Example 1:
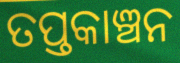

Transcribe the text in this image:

ତପ୍ତକାଞ୍ଚନ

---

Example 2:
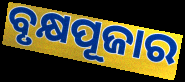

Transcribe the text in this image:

ବୃକ୍ଷପୂଜାର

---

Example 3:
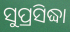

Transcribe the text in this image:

ସୁପ୍ରସିଦ୍ଧା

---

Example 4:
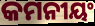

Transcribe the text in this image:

କମନୀୟଂ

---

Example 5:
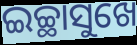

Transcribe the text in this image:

ଇଚ୍ଛାସୁଖେ